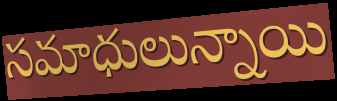
సమాధులున్నాయి